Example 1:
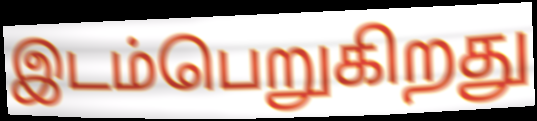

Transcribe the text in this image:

இடம்பெறுகிறது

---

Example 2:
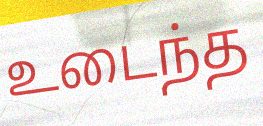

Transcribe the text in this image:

உடைந்த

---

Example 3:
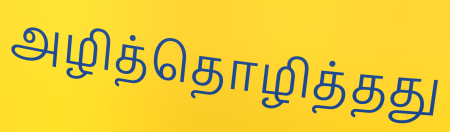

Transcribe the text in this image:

அழித்தொழித்தது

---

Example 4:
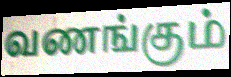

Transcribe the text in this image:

வணங்கும்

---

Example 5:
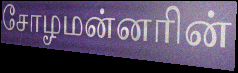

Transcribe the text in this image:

சோழமன்னரின்